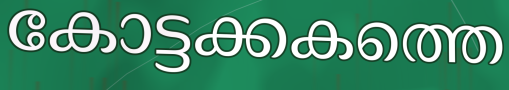
കോട്ടക്കകത്തെ